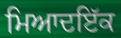
ਮਿਆਦਇੱਕ